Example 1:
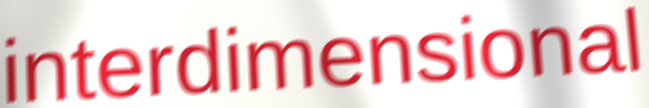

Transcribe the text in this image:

interdimensional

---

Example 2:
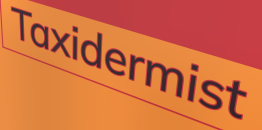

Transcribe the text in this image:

Taxidermist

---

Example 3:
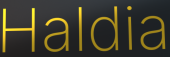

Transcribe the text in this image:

Haldia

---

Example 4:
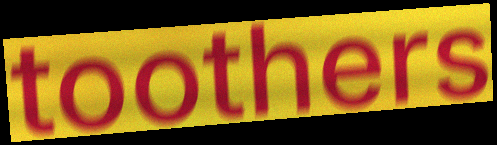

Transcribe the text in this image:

toothers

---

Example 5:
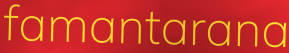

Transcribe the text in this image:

famantarana